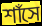
শাঁসে